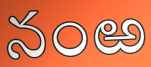
నంఱ